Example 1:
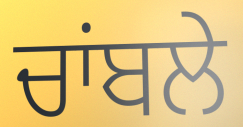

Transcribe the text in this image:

ਚਾਂਬਲੇ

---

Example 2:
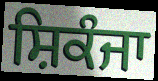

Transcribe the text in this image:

ਸ਼ਿਕੰਜਾ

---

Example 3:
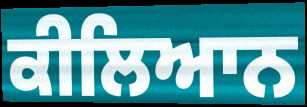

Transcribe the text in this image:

ਕੀਲਿਆਨ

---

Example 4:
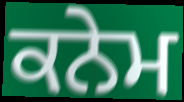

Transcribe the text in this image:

ਕਨੇਮ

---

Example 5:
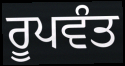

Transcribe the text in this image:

ਰੂਪਵੰਤ